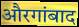
औरगांबाद